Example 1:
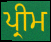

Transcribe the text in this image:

ਪ੍ਰੀਮ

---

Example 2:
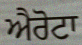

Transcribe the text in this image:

ਐਰੋਟਾ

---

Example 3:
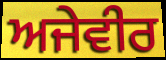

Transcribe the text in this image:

ਅਜੇਵੀਰ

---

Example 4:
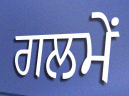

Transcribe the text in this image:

ਗਲਮੇਂ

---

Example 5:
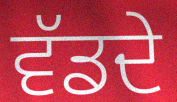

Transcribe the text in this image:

ਵੱਡਦੇ